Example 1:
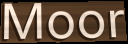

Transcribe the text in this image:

Moor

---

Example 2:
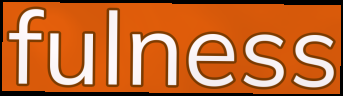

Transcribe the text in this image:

fulness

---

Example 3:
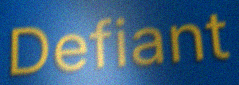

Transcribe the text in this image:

Defiant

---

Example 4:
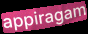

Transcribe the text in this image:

appiragam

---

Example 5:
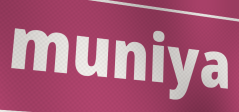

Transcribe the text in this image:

muniya